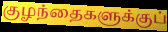
குழந்தைகளுக்குப்